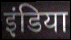
इ़ंडिया